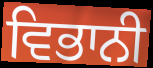
ਵਿਭਾਨੀ